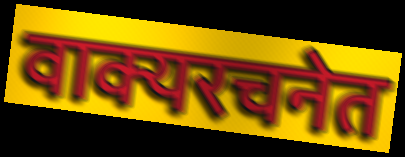
वाक्यरचनेत